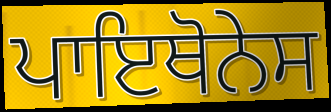
ਪਾਇਥੋਨੇਸ